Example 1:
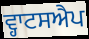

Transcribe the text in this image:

ਵ੍ਹਾਟਸਐਪ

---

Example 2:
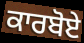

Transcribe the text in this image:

ਕਾਰਬੋਏ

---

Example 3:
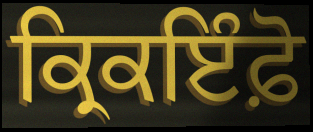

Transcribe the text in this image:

ਕ੍ਰਿਕਇੰਫ਼ੋ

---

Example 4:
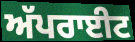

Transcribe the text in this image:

ਅੱਪਰਾਈਟ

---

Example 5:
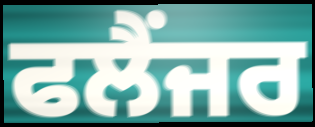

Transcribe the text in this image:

ਫਲੈਂਜਰ